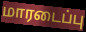
மாரடைப்பு